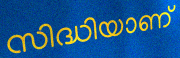
സിദ്ധിയാണ്